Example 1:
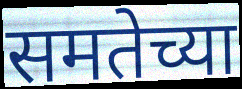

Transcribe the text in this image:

समतेच्या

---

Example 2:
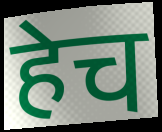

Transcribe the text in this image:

हेच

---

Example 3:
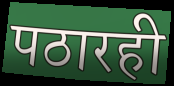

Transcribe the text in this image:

पठारही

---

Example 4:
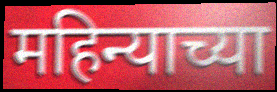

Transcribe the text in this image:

महिन्याच्या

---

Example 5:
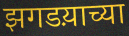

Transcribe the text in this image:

झगडय़ाच्या